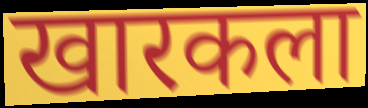
खारकला